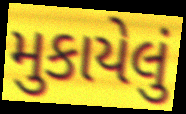
મુકાયેલું